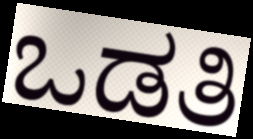
ಒಡತಿ